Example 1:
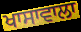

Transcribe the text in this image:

ਖਾਸਾਵਾਲਾ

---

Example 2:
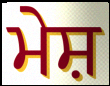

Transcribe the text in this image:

ਮੇਸ਼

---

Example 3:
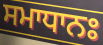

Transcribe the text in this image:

ਸਮਾਧਾਨਃ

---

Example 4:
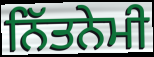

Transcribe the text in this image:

ਨਿੱਤਨੇਮੀ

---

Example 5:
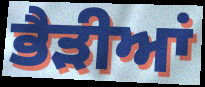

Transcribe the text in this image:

ਭੈੜੀਆਂ